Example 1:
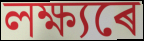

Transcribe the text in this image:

লক্ষ্যৰে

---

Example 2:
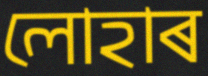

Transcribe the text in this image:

লোহাৰ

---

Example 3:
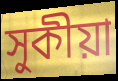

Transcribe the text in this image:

সুকীয়া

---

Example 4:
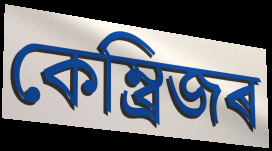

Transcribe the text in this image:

কেম্ব্ৰিজৰ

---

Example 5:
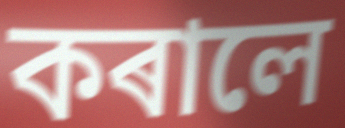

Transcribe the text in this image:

কৰালে